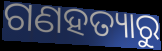
ଗଣହତ୍ୟାରୁ